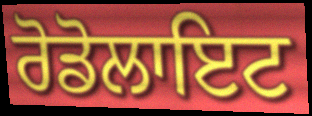
ਰੋਡੋਲਾਇਟ